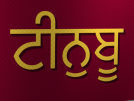
ਟੀਨੁਬੂ